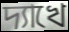
দ্যাখে